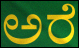
ಅರೆ